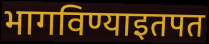
भागविण्याइतपत